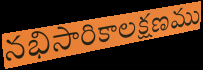
నభిసారికాలక్షణము